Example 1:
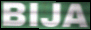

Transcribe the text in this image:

BIJA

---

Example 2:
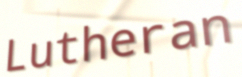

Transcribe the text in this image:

Lutheran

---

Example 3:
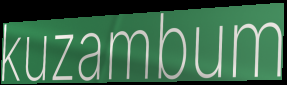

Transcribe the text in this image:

kuzambum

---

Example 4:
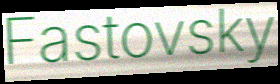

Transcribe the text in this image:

Fastovsky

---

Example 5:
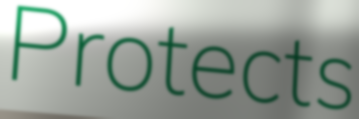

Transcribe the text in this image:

Protects